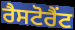
ਰੈਸਟੋਰੈਂਟ